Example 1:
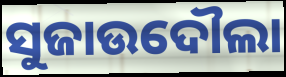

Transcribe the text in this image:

ସୁଜାଉଦୌଲା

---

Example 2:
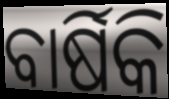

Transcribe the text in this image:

ବାର୍ଷିକି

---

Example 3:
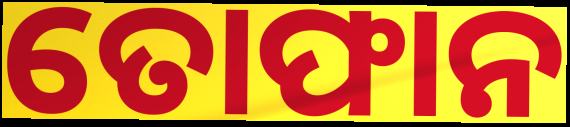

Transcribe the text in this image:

ତୋଫାନ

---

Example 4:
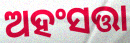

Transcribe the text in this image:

ଅହଂସତ୍ତା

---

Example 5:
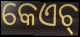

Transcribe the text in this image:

କେଏଚ୍